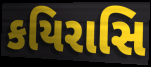
કયિરાસિ